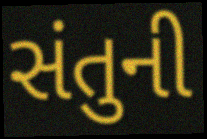
સંતુની